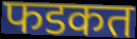
फडकत